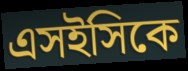
এসইসিকে